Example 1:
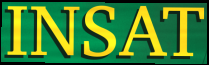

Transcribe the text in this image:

INSAT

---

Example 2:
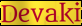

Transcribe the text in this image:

Devaki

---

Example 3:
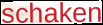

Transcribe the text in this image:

schaken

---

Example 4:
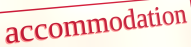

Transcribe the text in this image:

accommodation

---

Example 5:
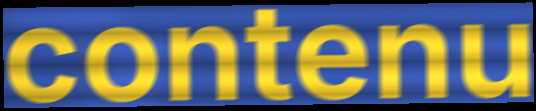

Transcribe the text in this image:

contenu